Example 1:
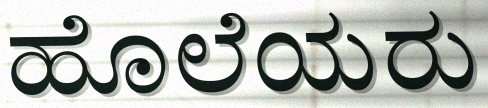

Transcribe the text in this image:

ಹೊಲೆಯರು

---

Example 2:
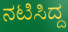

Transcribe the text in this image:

ನಟಿಸಿದ್ದ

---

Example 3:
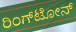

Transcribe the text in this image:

ರಿಂಗ್‌ಟೋನ್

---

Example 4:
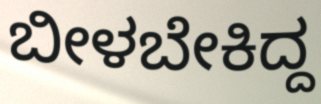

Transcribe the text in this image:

ಬೀಳಬೇಕಿದ್ದ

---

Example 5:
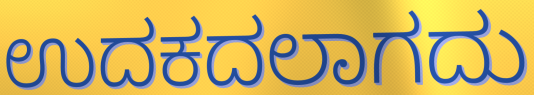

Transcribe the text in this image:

ಉದಕದಲಾಗದು